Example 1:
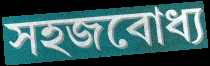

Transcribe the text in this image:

সহজবোধ্য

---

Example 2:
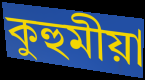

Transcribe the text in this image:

কুহুমীয়া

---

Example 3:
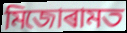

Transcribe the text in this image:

মিজোৰামত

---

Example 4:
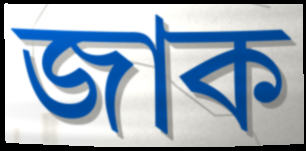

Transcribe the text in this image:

জাক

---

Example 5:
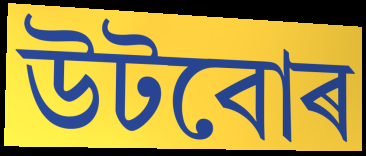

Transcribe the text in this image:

উটবোৰ